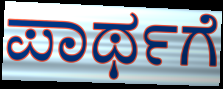
ಪಾರ್ಥಗೆ